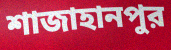
শাজাহানপুর